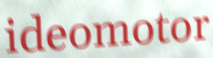
ideomotor